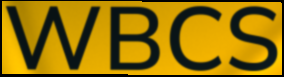
WBCS